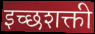
इच्छशक्ती